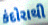
કંદોરાથી